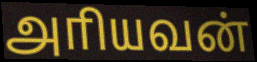
அரியவன்